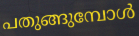
പതുങ്ങുമ്പോൾ